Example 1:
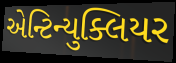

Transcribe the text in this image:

એન્ટિન્યુક્લિયર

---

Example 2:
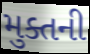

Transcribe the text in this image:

મુક્તની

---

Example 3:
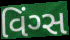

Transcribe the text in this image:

વિંગ્સ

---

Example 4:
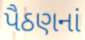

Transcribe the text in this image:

પૈઠણનાં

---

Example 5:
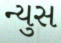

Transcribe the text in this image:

ન્યુસ